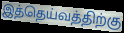
இத்தெய்வத்திற்கு